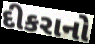
દીકરાનો